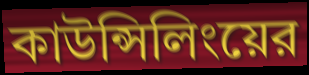
কাউন্সিলিংয়ের